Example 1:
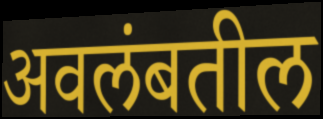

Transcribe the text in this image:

अवलंबतील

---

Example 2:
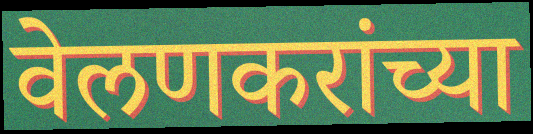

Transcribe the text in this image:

वेलणकरांच्या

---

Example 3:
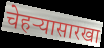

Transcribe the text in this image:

चेहऱ्यासारखा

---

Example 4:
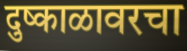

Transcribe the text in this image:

दुष्काळावरचा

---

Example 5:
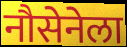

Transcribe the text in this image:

नौसेनेला